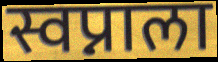
स्वप्नाला